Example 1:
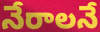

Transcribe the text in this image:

నేరాలనే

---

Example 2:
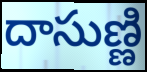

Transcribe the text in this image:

దాసుణ్ణి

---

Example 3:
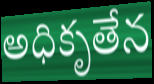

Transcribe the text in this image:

అధికృతేన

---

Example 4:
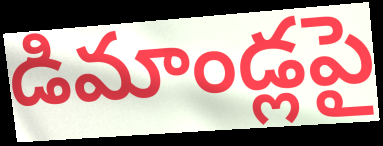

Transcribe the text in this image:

డిమాండ్లపై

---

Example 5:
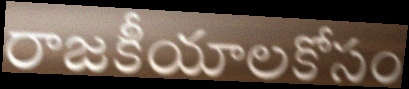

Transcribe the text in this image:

రాజకీయాలకోసం